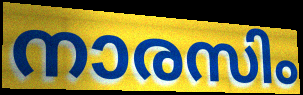
നാരസിം